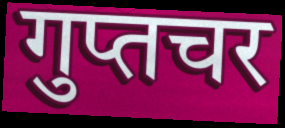
गुप्तचर